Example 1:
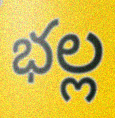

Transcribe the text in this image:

భల్ల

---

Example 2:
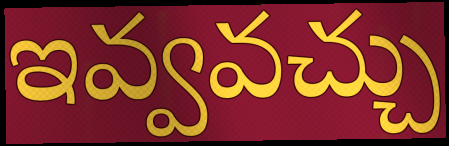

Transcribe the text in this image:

ఇవ్వవచ్చు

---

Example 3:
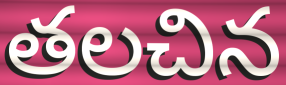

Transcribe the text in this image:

తలచిన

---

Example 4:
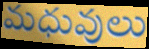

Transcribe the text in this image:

మధువులు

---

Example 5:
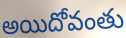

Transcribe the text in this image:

అయిదోవంతు